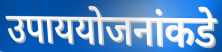
उपाययोजनांकडे